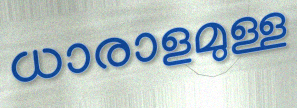
ധാരാളമുള്ള